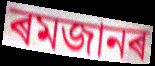
ৰমজানৰ